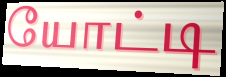
யோட்டி